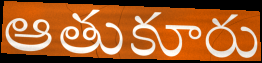
ఆతుకూరు